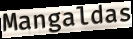
Mangaldas